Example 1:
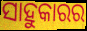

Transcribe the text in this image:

ସାହୁକାରର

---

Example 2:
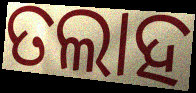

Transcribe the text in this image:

ତଲାହ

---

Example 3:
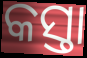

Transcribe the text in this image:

କସ୍ତା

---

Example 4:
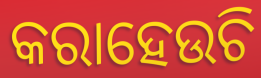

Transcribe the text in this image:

କରାହେଉଚି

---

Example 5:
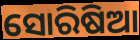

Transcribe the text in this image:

ସୋରିଷିଆ